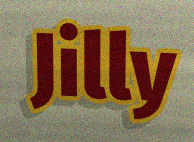
Jilly